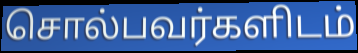
சொல்பவர்களிடம்